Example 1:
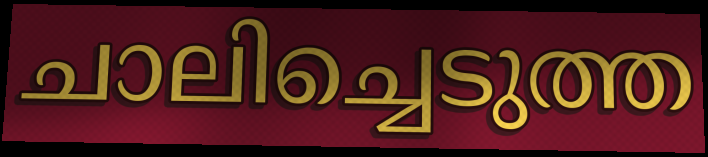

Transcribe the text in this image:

ചാലിച്ചെടുത്ത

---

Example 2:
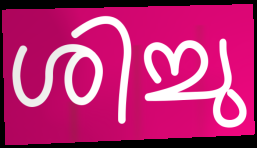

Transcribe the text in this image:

ശിച്ചു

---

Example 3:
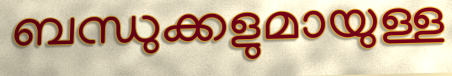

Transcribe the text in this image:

ബന്ധുക്കളുമായുള്ള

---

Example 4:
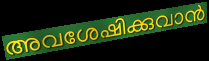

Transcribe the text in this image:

അവശേഷിക്കുവാൻ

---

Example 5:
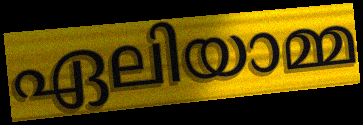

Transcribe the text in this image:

ഏലിയാമ്മ